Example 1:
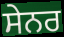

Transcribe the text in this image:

ਸੇਨਰ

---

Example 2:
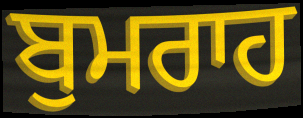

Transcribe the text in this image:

ਬੁਮਰਾਹ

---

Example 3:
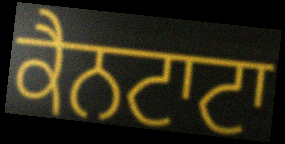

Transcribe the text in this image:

ਕੈਨਟਾਟਾ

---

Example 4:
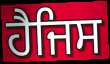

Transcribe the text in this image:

ਹੈਜਿਸ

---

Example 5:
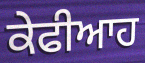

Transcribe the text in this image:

ਕੇਫੀਆਹ